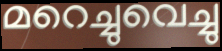
മറെച്ചുവെച്ചു